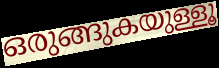
ഒരുങ്ങുകയുള്ളൂ